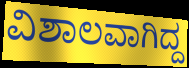
ವಿಶಾಲವಾಗಿದ್ದ